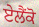
ਏਲੈਂਕੋ